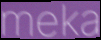
meka